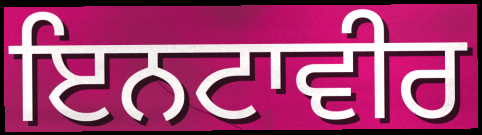
ਇਨਟਾਵੀਰ